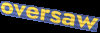
oversaw